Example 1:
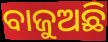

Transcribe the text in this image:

ବାଜୁଅଛି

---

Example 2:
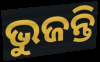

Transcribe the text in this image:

ଭୁଜନ୍ତି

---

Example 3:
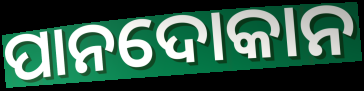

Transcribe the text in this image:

ପାନଦୋକାନ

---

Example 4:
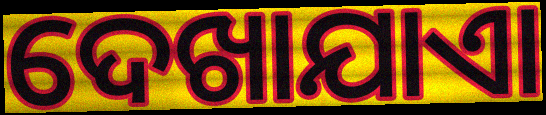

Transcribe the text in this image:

ଦେଖାଯାଏା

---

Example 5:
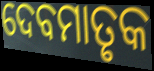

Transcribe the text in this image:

ଦେବମାତୃକ